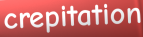
crepitation